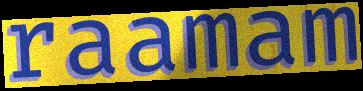
raamam